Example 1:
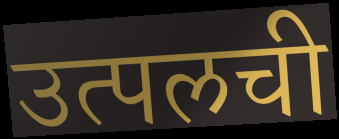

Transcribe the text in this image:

उत्पलची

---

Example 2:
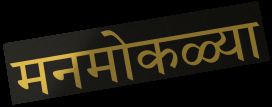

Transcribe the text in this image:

मनमोकळ्या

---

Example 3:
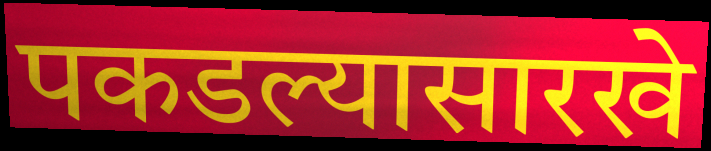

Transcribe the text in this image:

पकडल्यासारखे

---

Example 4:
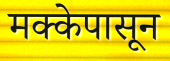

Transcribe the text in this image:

मक्केपासून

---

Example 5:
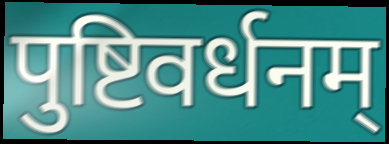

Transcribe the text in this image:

पुष्टिवर्धनम्